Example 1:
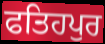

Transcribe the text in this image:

ਫਤਿਹਪੁਰ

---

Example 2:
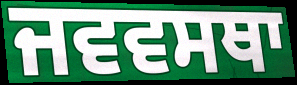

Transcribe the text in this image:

ਜਵਵਸਥਾ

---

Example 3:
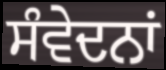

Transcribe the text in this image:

ਸੰਵੇਦਨਾਂ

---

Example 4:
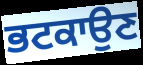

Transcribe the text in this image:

ਭਟਕਾਉਣ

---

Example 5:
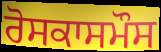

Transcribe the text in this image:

ਰੋਸਕਾਸਮੌਸ